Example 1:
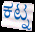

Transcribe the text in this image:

ಕಟ್ನ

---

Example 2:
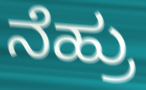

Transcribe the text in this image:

ನೆಹ್ರು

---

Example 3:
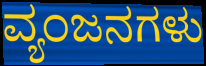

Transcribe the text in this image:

ವ್ಯಂಜನಗಳು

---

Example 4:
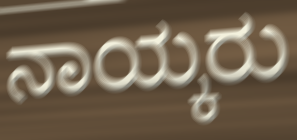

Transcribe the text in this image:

ನಾಯ್ಕರು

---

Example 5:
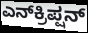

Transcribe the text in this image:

ಎನ್‌ಕ್ರಿಪ್ಷನ್